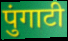
पुंगाटी